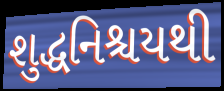
શુદ્ધનિશ્ચયથી